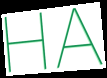
HA